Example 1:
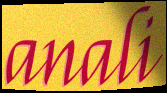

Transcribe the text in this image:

anali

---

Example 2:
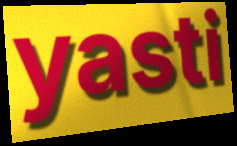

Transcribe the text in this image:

yasti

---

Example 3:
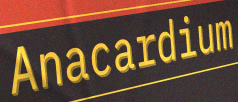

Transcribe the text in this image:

Anacardium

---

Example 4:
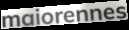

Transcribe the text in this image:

maiorennes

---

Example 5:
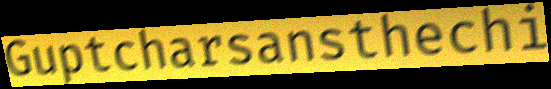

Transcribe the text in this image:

Guptcharsansthechi